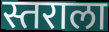
स्तराला